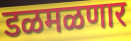
डळमळणार